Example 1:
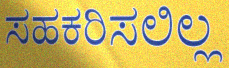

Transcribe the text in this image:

ಸಹಕರಿಸಲಿಲ್ಲ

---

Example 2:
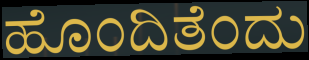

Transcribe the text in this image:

ಹೊಂದಿತೆಂದು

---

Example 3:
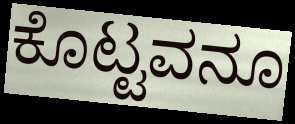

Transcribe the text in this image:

ಕೊಟ್ಟವನೂ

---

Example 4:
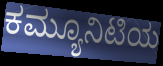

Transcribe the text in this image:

ಕಮ್ಯೂನಿಟಿಯ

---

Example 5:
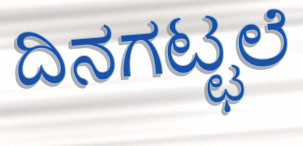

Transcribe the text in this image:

ದಿನಗಟ್ಟಲೆ